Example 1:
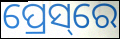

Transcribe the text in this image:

ପ୍ରେସ୍‌ରେ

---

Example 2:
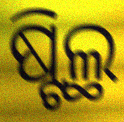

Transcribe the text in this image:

ଷ୍ଟିଲ୍ଥ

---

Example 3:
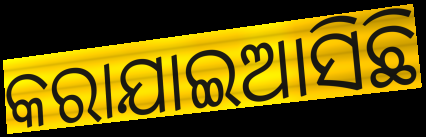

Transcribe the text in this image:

କରାଯାଇଆସିଛି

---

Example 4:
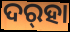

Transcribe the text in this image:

ଦର୍‌ହା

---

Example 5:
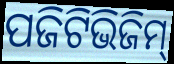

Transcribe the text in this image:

ପଜିଟିଭିଜିମ୍